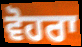
ਵੋਹਰਾ